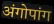
अंगोपांग